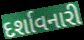
દર્શાવનારી